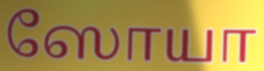
ஸோயா